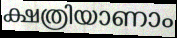
ക്ഷത്രിയാണാം